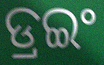
ଡ୍ରଇଂ